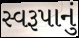
સ્વરૂપાનું